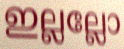
ഇല്ലല്ലോ